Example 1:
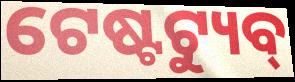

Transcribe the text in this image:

ଟେଷ୍ଟଟ୍ୟୁବ୍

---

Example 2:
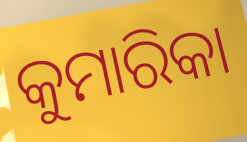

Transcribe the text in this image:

କୁମାରିକା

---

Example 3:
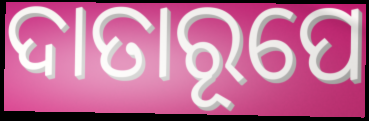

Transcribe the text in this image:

ଦାତାରୂପେ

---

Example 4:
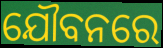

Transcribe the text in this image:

ଯୌବନରେ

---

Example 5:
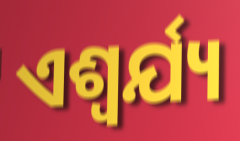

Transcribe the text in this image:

ଏଶ୍ଵର୍ଯ୍ୟ